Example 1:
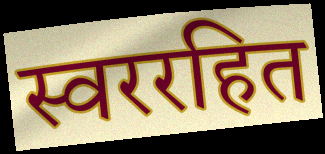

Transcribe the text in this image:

स्वररहित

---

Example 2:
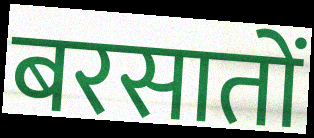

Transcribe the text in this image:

बरसातों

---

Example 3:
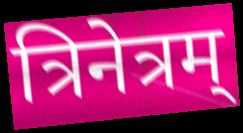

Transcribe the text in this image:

त्रिनेत्रम्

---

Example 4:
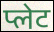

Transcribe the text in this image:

प्लेट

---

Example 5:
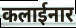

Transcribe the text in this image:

कलाईनार